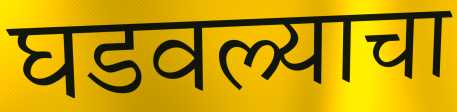
घडवल्याचा